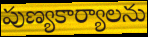
పుణ్యకార్యాలను